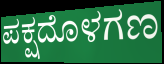
ಪಕ್ಷದೊಳಗಣ